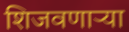
शिजवणाऱ्या